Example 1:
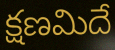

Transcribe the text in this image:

క్షణమిదే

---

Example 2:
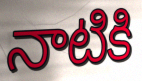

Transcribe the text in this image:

నాటికి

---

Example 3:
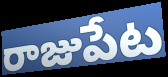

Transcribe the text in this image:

రాజుపేట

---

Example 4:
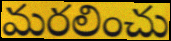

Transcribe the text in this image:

మరలించు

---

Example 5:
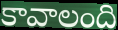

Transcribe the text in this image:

కావాలంది